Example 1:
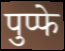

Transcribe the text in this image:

पुप्फे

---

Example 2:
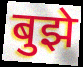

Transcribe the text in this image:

बुझे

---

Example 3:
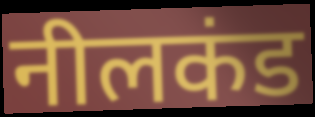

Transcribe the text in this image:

नीलकंड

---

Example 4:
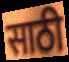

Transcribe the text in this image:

साठी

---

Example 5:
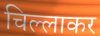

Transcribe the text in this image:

चिल्‍लाकर